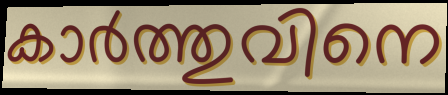
കാർത്തുവിനെ